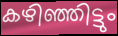
കഴിഞ്ഞിട്ടും